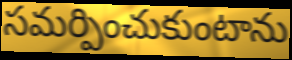
సమర్పించుకుంటాను